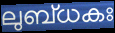
ലുബ്ധകഃ